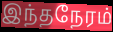
இந்தநேரம்